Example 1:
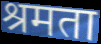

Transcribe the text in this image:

श्रमता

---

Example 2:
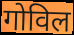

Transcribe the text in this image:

गोविल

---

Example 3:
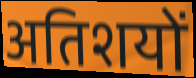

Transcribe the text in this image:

अतिशयों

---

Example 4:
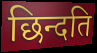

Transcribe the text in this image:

छिन्दति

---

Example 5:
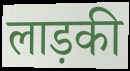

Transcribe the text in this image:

लाड़की